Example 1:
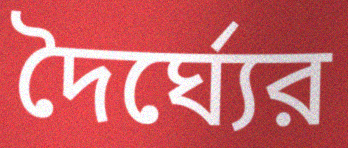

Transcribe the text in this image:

দৈর্ঘ্যের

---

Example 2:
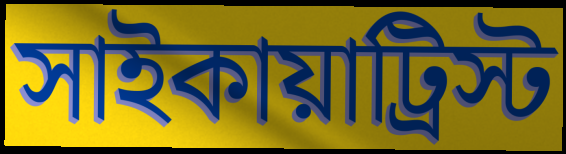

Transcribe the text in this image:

সাইকায়াট্রিস্ট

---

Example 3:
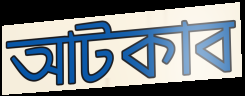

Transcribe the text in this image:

আটকাব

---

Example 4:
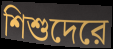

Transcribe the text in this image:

শিশুদেরে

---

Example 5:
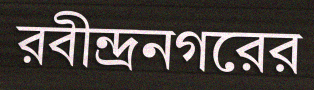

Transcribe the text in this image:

রবীন্দ্রনগরের